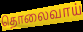
தொலைவாய்